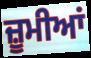
ਜ਼ੂਮੀਆਂ